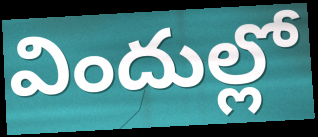
విందుల్లో